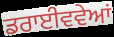
ਡਰਾਈਵਵੇਆਂ